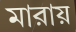
মারায়